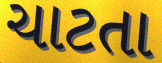
ચાટતા